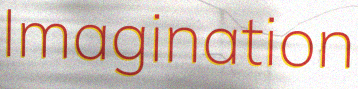
Imagination